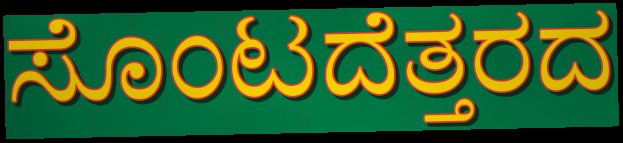
ಸೊಂಟದೆತ್ತರದ